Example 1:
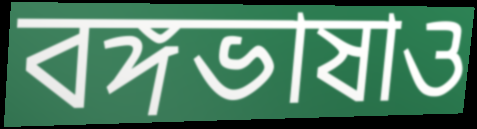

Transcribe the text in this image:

বঙ্গভাষাও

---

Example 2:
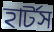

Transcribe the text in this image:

হার্টস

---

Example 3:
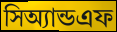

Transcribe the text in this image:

সিঅ্যান্ডএফ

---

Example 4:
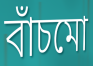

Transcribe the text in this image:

বাঁচমো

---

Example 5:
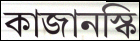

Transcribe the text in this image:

কাজানস্কি